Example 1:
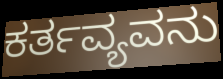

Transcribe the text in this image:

ಕರ್ತವ್ಯವನು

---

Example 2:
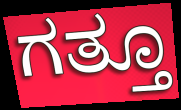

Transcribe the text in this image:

ಗತ್ತೂ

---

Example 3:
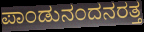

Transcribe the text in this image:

ಪಾಂಡುನಂದನರತ್ತ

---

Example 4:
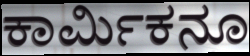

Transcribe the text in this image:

ಕಾರ್ಮಿಕನೂ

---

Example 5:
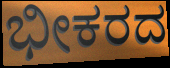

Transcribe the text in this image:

ಭೀಕರದ